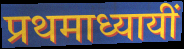
प्रथमाध्यायीं